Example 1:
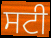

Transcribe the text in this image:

ਸਟੀ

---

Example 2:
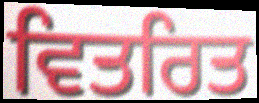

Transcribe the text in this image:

ਵਿਤਰਿਤ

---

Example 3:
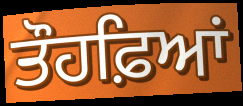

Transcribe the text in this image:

ਤੌਹਫ਼ਿਆਂ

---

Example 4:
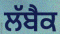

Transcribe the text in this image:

ਲੱਬੈਕ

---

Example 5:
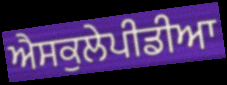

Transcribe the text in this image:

ਐਸਕੁਲੇਪੀਡੀਆ